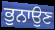
ਭੁਨਾਉਣ